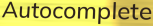
Autocomplete